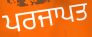
ਪਰਜਾਪਤ